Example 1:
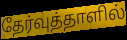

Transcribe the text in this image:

தேர்வுத்தாளில்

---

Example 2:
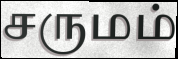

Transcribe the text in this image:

சருமம்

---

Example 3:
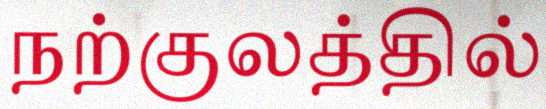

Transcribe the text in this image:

நற்குலத்தில்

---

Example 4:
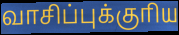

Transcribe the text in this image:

வாசிப்புக்குரிய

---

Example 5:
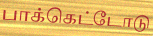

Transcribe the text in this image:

பாக்கெட்டோடு